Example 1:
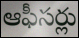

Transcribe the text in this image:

ఆఫీసర్లు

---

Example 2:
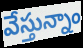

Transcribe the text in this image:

వేస్తున్నాం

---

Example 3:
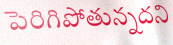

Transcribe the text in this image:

పెరిగిపోతున్నదని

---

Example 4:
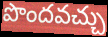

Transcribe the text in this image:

పొందవచ్చు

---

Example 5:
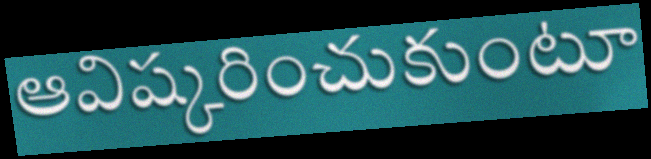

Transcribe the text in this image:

ఆవిష్కరించుకుంటూ